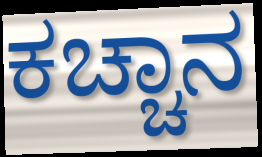
ಕಚ್ಚಾನ